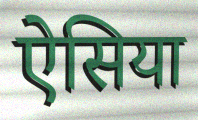
ऐसिया